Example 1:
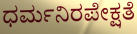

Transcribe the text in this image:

ಧರ್ಮನಿರಪೇಕ್ಷತೆ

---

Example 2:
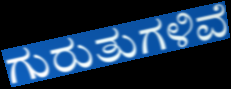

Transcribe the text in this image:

ಗುರುತುಗಳಿವೆ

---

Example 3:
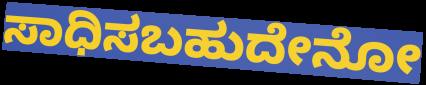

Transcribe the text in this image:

ಸಾಧಿಸಬಹುದೇನೋ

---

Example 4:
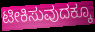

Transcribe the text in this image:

ಟೀಕಿಸುವುದಕ್ಕೂ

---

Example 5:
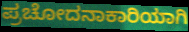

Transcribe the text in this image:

ಪ್ರಚೋದನಾಕಾರಿಯಾಗಿ